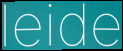
leide